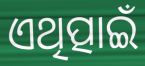
ଏଥିତ୍ପାଇଁ